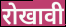
रोखावी